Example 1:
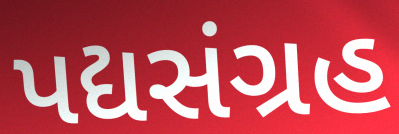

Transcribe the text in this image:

પદ્યસંગ્રહ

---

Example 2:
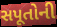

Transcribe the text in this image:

સપૂતોની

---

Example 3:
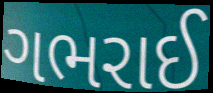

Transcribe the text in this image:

ગભરાઈ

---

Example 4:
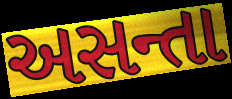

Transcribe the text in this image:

અસન્તા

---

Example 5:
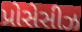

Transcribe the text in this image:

પ્રોસેસીઝ